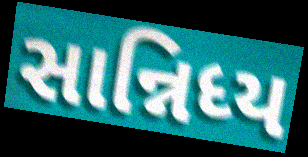
સાન્નિધ્ય